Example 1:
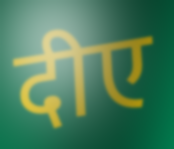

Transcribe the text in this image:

दीए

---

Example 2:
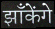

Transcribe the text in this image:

झाँकेंगे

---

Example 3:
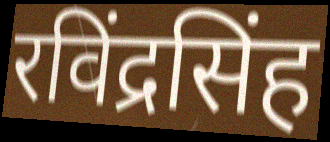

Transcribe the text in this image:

रविंद्रसिंह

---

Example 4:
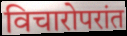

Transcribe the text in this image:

विचारोपरांत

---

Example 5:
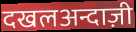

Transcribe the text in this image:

दखलअन्दाज़ी